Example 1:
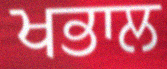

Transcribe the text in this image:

ਖਭਾਲ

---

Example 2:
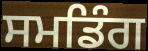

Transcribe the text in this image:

ਸਮਡਿੰਗ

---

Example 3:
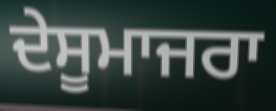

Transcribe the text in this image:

ਦੇਸੂਮਾਜਰਾ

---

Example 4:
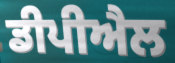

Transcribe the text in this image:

ਡੀਪੀਐਲ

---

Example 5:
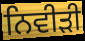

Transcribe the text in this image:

ਨਿਵੀੜੀ